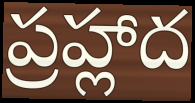
ప్రహ్లాద